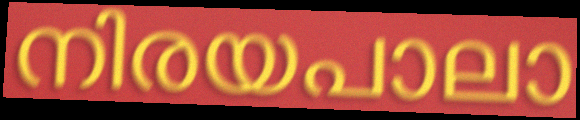
നിരയപാലാ